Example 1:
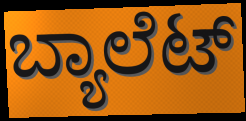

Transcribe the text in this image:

ಬ್ಯಾಲೆಟ್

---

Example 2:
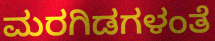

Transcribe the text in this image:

ಮರಗಿಡಗಳಂತೆ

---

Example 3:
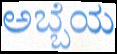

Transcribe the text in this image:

ಅಬ್ಬೆಯ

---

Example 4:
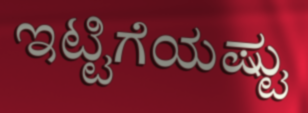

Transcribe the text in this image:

ಇಟ್ಟಿಗೆಯಷ್ಟು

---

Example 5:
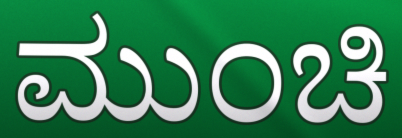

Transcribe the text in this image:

ಮುಂಚಿ